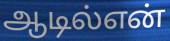
ஆடில்என்